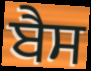
ਬੈਸ